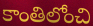
కాంతిలోంచి